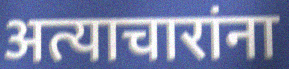
अत्याचारांना